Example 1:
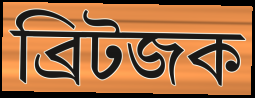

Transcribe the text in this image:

ব্রিটজক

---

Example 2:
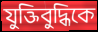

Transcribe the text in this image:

যুক্তিবুদ্ধিকে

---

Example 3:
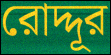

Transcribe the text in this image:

রোদ্দূর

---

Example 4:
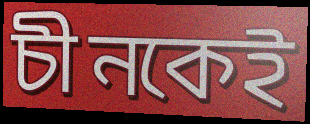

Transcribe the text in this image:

চীনকেই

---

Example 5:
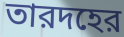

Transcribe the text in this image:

তারদহের